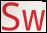
Sw